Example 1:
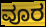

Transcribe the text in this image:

ವೂರ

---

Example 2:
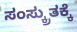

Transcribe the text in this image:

ಸಂಸ್ಕ್ರುತಕ್ಕೆ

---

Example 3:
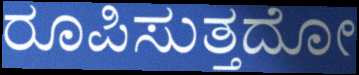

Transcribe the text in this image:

ರೂಪಿಸುತ್ತದೋ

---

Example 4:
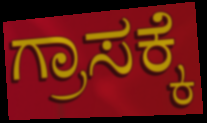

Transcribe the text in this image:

ಗ್ರಾಸಕ್ಕೆ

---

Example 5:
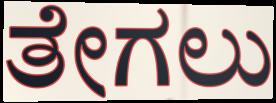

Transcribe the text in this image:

ತೇಗಲು